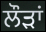
ਲੌੜਾਂ